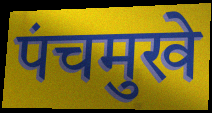
पंचमुखे